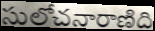
సులోచనారాణిది